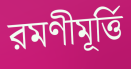
রমণীমূর্ত্তি